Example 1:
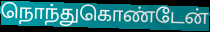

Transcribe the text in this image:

நொந்துகொண்டேன்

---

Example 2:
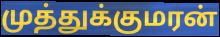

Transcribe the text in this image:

முத்துக்குமரன்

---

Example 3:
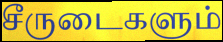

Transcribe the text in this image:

சீருடைகளும்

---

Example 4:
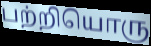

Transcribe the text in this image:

பற்றியொரு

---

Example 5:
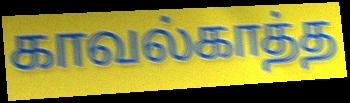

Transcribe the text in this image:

காவல்காத்த